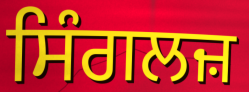
ਸਿੰਗਲਜ਼